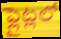
ఫ్లైట్లలో